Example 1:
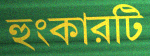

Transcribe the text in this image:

হুংকারটি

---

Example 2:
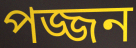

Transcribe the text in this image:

পজ্জন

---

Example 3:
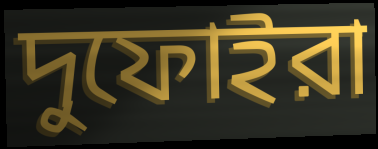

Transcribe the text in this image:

দুফোইরা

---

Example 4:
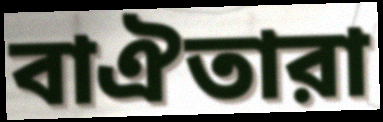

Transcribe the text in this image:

বাঐতারা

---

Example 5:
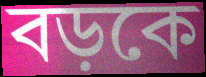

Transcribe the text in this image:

বড়কে